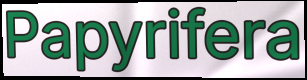
Papyrifera